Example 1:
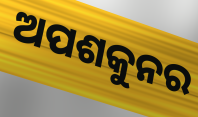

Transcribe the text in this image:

ଅପଶକୁନର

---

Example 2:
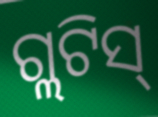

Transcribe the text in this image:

ଗ୍ଲଟିସ୍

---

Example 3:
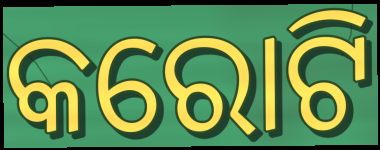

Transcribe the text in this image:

କରୋଟି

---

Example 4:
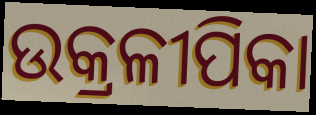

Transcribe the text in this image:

ଉକ୍ରଳୀପିକା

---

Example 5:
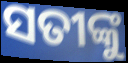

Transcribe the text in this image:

ସତୀଙ୍କୁ